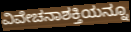
ವಿವೇಚನಾಶಕ್ತಿಯನ್ನೂ